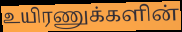
உயிரணுக்களின்